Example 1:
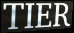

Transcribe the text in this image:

TIER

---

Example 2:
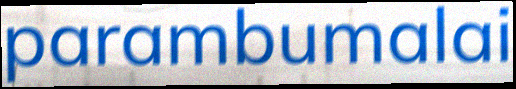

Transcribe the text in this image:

parambumalai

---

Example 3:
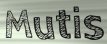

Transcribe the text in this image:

Mutis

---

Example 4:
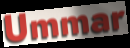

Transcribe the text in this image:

Ummar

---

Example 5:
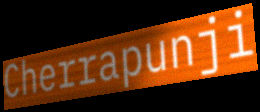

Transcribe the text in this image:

Cherrapunji